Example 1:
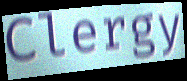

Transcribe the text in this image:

Clergy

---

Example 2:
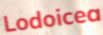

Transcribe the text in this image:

Lodoicea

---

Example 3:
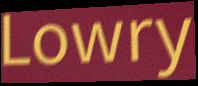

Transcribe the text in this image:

Lowry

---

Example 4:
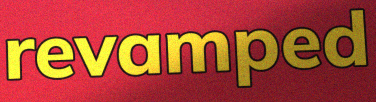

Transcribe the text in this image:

revamped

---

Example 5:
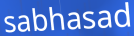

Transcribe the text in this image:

sabhasad